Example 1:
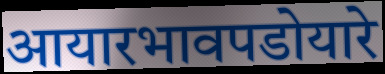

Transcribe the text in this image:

आयारभावपडोयारे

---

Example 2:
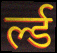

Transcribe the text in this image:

र्ल्ड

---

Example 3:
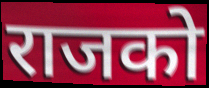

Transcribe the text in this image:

राजको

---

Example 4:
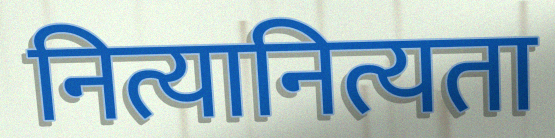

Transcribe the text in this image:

नित्यानित्यता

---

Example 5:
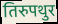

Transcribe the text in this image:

तिरुपथुर